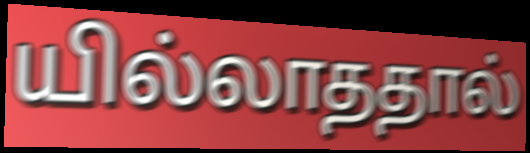
யில்லாததால்